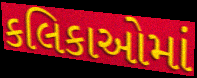
કલિકાઓમાં